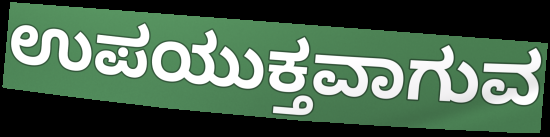
ಉಪಯುಕ್ತವಾಗುವ